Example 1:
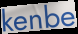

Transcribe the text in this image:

kenbe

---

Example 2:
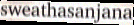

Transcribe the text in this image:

sweathasanjana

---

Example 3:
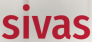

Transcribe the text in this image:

sivas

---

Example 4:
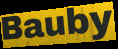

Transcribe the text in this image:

Bauby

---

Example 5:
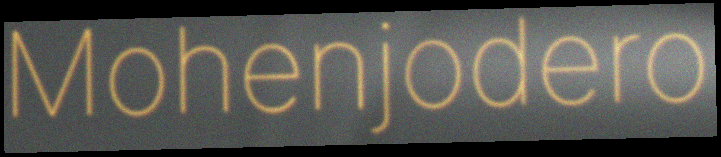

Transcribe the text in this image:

Mohenjodero